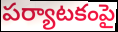
పర్యాటకంపై